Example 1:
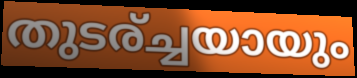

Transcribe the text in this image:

തുടര്ച്ചയായും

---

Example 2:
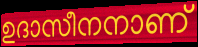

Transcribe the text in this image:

ഉദാസീനനാണ്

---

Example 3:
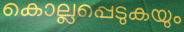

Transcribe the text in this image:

കൊല്ലപ്പെടുകയും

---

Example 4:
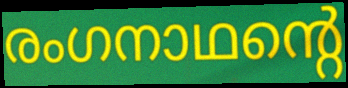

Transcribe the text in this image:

രംഗനാഥന്റെ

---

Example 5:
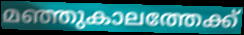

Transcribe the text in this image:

മഞ്ഞുകാലത്തേക്ക്